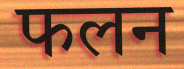
फलन